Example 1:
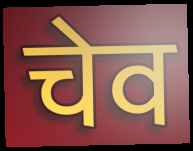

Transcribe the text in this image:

चेव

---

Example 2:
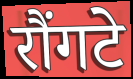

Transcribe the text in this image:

रौंगटे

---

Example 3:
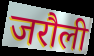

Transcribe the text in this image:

जरौली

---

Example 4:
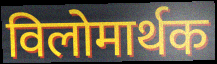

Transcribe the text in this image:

विलोमार्थक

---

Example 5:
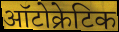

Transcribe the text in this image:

ऑटोक्रेटिक